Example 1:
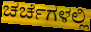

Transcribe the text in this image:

ಚರ್ಚೆಗಳಲ್ಲಿ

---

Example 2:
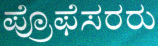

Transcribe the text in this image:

ಪ್ರೊಫೆಸರರು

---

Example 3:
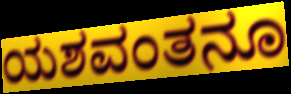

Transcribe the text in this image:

ಯಶವಂತನೂ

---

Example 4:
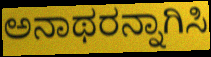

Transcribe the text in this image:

ಅನಾಥರನ್ನಾಗಿಸಿ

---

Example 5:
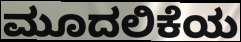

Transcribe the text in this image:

ಮೂದಲಿಕೆಯ